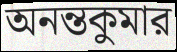
অনন্তকুমার